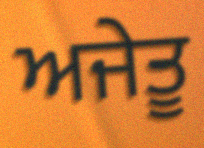
ਅਜੇਤੂ